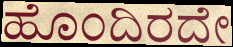
ಹೊಂದಿರದೇ